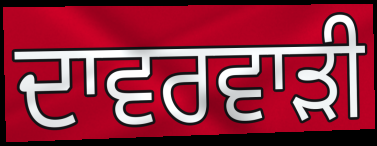
ਦਾਵਰਵਾੜੀ